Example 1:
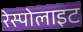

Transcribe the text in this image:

रेस्पोलाइट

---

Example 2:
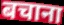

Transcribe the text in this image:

बचाना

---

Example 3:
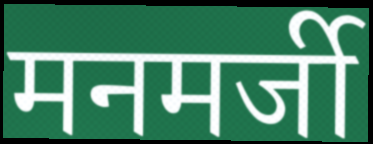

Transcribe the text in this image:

मनमर्जी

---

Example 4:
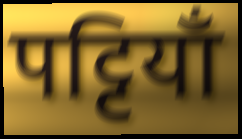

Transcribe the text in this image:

पट्टियाँ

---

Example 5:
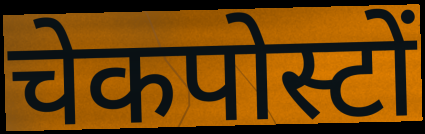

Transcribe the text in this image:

चेकपोस्टों